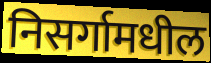
निसर्गामधील